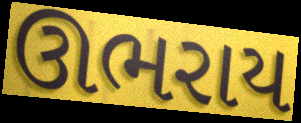
ઊભરાય